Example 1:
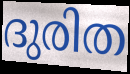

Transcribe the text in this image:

ദുരിത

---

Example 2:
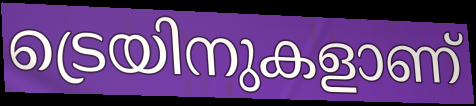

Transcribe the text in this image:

ട്രെയിനുകളാണ്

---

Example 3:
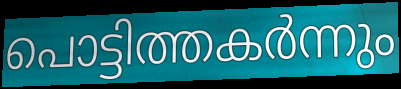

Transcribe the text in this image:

പൊട്ടിത്തകർന്നും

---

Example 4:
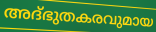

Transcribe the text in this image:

അദ്ഭുതകരവുമായ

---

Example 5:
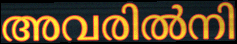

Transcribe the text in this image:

അവരിൽനി